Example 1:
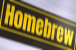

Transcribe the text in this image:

Homebrew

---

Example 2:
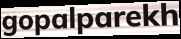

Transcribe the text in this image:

gopalparekh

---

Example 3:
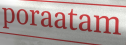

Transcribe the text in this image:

poraatam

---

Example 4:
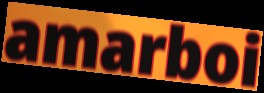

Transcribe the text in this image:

amarboi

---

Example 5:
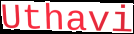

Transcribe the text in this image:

Uthavi